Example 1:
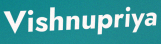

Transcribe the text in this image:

Vishnupriya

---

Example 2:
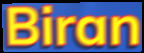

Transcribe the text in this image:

Biran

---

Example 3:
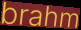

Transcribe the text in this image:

brahm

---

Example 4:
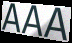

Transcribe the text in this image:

AAA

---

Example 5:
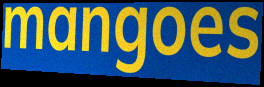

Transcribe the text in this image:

mangoes